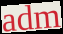
adm